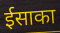
ईसाका